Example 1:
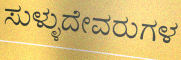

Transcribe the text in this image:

ಸುಳ್ಳುದೇವರುಗಳ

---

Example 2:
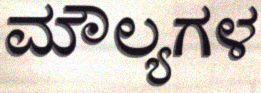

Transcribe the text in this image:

ಮೌಲ್ಯಗಳ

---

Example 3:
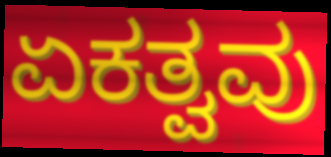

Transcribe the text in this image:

ಏಕತ್ವವು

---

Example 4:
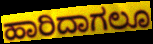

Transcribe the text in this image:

ಹಾರಿದಾಗಲೂ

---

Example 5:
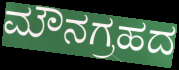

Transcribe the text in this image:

ಮೌನಗ್ರಹದ